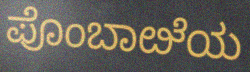
ಪೊಂಬಾೞೆಯ